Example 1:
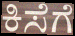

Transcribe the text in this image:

ಕಿಸೆಗೆ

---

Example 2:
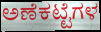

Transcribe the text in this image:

ಅಣೆಕಟ್ಟೆಗಳ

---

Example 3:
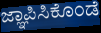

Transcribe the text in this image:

ಜ್ಞಾಪಿಸಿಕೊಂಡೆ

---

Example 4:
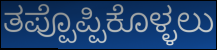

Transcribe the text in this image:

ತಪ್ಪೊಪ್ಪಿಕೊಳ್ಳಲು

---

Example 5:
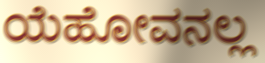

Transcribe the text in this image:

ಯೆಹೋವನಲ್ಲ